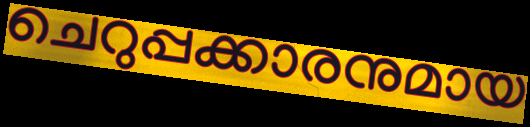
ചെറുപ്പക്കാരനുമായ